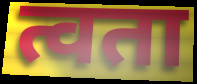
त्वता